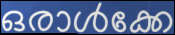
ഒരാൾക്കേ